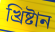
খ্ৰিষ্টান